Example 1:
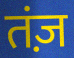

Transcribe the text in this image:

तंज़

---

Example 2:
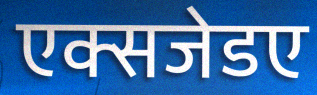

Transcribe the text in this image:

एक्सजेडए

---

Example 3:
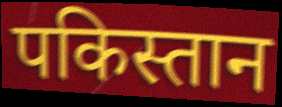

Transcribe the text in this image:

पकिस्तान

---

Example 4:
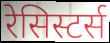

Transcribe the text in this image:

रेसिस्टर्स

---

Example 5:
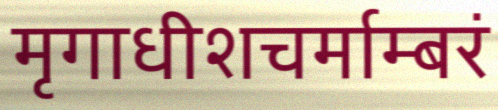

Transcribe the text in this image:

मृगाधीशचर्माम्बरं